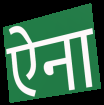
ऐना